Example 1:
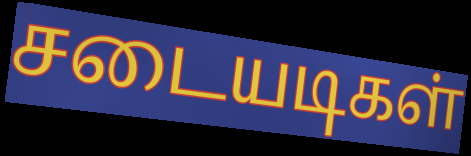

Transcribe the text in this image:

சடையடிகள்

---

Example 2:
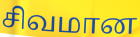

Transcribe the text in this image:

சிவமான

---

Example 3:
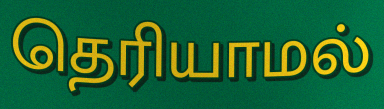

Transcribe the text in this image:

தெரியாமல்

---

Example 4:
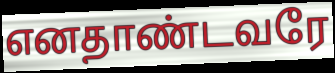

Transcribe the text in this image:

எனதாண்டவரே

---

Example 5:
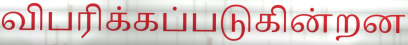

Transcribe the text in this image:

விபரிக்கப்படுகின்றன